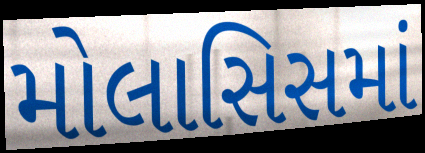
મોલાસિસમાં